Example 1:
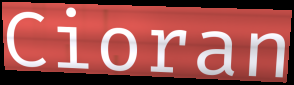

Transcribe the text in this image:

Cioran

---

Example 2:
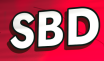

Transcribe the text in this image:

SBD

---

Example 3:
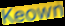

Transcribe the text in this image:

Keown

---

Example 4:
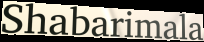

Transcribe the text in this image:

Shabarimala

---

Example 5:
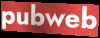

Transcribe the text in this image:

pubweb